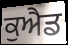
ਕੁਐਡ